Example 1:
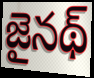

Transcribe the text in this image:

జైనథ్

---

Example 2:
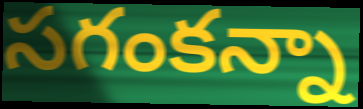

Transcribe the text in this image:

సగంకన్నా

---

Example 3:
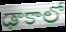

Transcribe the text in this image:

ఢాకాలో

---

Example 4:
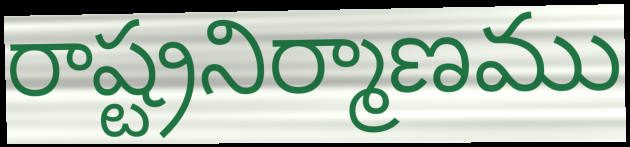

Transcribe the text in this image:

రాష్ట్రనిర్మాణము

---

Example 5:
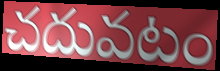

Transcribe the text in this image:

చదువటం